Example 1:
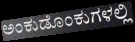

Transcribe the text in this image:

ಅಂಕುಡೊಂಕುಗಳಲ್ಲಿ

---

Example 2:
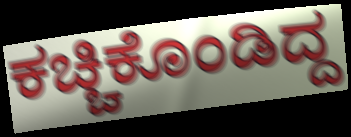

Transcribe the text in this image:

ಕಚ್ಚಿಕೊಂಡಿದ್ದ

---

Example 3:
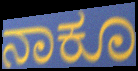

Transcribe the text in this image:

ನಾಕೂ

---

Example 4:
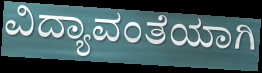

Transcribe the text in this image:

ವಿದ್ಯಾವಂತೆಯಾಗಿ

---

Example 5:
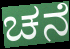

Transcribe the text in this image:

ಚನೆ